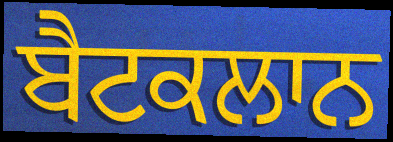
ਬੈਟਕਲਾਨ